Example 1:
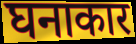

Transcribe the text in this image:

घनाकार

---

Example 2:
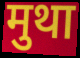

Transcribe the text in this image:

मुथा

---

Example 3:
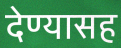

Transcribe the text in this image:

देण्यासह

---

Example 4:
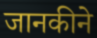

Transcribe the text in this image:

जानकीने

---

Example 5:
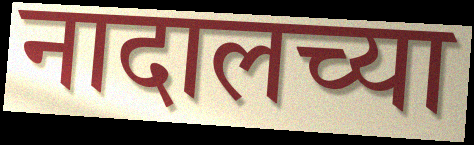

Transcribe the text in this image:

नादालच्या